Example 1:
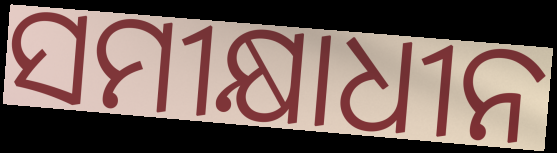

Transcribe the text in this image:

ସମୀକ୍ଷାଧୀନ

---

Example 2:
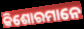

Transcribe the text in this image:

କିଶୋରମାନେ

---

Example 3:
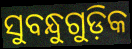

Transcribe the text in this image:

ସୁବନ୍ଧୁଗୁଡ଼ିକ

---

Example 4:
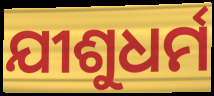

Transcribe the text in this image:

ଯୀଶୁଧର୍ମ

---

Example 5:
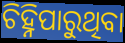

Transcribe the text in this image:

ଚିହ୍ନିପାରୁଥିବା